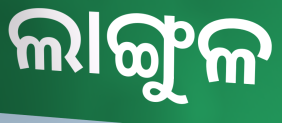
ଲାଙ୍ଗୁଳ